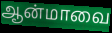
ஆன்மாவை